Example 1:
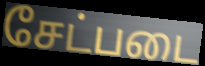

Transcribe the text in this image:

சேட்படை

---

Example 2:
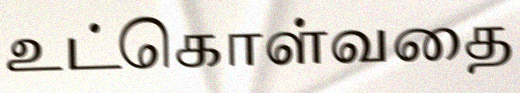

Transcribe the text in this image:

உட்கொள்வதை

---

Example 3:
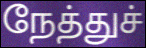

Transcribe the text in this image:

நேத்துச்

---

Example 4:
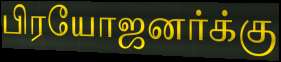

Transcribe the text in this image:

பிரயோஜனர்க்கு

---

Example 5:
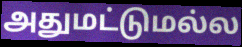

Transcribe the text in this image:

அதுமட்டுமல்ல